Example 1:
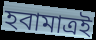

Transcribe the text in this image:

হবামাত্রই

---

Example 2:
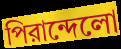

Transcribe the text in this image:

পিরান্দেলো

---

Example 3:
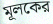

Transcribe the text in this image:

মূলকের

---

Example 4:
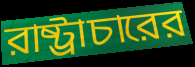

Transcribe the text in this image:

রাষ্ট্রাচারের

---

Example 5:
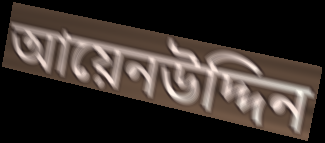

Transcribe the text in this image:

আয়েনউদ্দিন